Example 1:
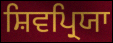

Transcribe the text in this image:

ਸ਼ਿਵਪ੍ਰਿਯਾ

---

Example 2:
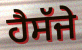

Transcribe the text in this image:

ਹੈਸੱਜੇ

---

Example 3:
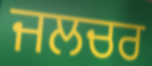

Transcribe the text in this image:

ਜਲਚਰ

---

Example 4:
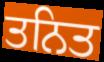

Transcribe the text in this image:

ਤਨਿਤ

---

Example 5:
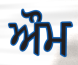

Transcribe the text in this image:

ਔਮ